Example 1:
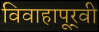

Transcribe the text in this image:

विवाहापूर्वी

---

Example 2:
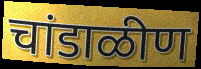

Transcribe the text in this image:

चांडाळीण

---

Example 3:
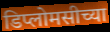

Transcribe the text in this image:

डिप्लोमसीच्या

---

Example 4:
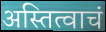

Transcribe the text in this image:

अस्तित्वाचं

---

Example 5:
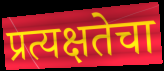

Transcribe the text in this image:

प्रत्यक्षतेचा